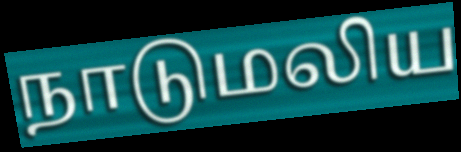
நாடுமலிய